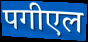
पगीएल